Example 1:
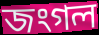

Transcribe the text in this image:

জংগল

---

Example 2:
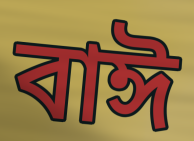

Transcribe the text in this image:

বাঈ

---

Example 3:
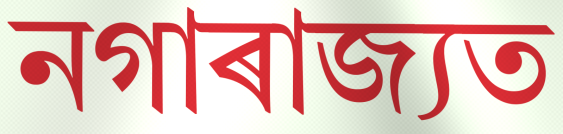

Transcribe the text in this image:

নগাৰাজ্যত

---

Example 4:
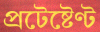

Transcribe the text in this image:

প্ৰটেষ্টেণ্ট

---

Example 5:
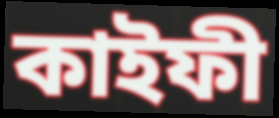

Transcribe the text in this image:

কাইফী